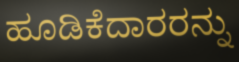
ಹೂಡಿಕೆದಾರರನ್ನು